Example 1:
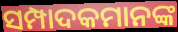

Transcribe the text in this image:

ସମ୍ପାଦକମାନଙ୍କ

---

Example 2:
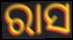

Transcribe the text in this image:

ରାସ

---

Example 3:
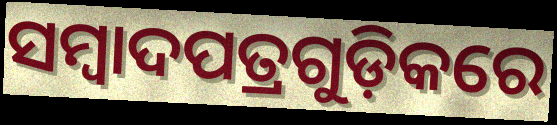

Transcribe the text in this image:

ସମ୍ୱାଦପତ୍ରଗୁଡ଼ିକରେ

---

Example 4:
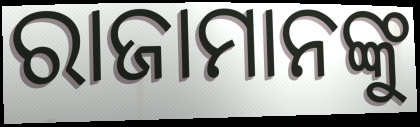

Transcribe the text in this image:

ରାଜାମାନଙ୍କୁ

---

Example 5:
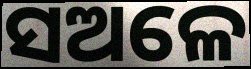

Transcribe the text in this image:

ସଅଳେ